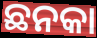
ଛନକା